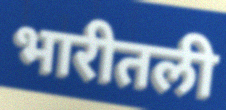
भारीतली